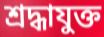
শ্রদ্ধাযুক্ত